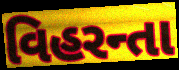
વિહરન્તા